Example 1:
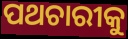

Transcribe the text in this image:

ପଥଚାରୀକୁ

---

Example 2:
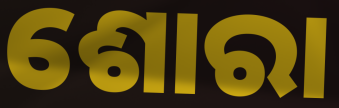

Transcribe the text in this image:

ଶୋରା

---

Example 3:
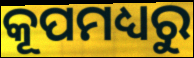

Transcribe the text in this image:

କୂପମଧ୍ୟରୁ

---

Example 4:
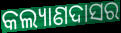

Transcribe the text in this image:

କଲ୍ୟାଣଦାସର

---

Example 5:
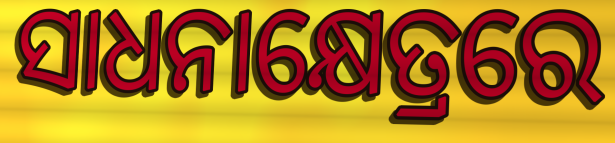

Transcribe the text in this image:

ସାଧନାକ୍ଷେତ୍ରରେ